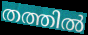
തത്തിൽ